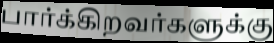
பார்க்கிறவர்களுக்கு